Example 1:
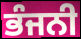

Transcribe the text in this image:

ਭੰਜਨੀ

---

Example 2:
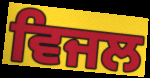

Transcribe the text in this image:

ਵਿਜਲ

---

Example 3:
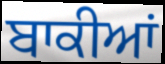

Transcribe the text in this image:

ਬਾਕੀਆਂ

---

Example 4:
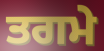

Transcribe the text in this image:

ਤਗਮੇ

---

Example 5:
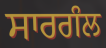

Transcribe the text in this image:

ਸਾਰਗੰਲ